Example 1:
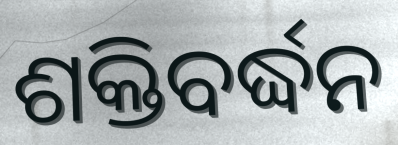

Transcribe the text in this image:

ଶକ୍ତିବର୍ଦ୍ଧନ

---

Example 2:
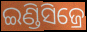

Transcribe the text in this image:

ଇଣ୍ଡିସିଜ୍ରେ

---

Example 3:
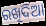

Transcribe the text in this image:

ରଖିଦିଆ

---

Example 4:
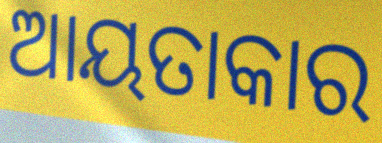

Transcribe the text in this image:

ଆୟତାକାର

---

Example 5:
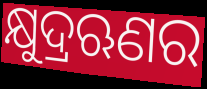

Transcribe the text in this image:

କ୍ଷୁଦ୍ରଋଣର